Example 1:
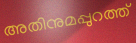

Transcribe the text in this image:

അതിനുമപ്പുറത്ത്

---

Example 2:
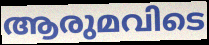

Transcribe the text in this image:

ആരുമവിടെ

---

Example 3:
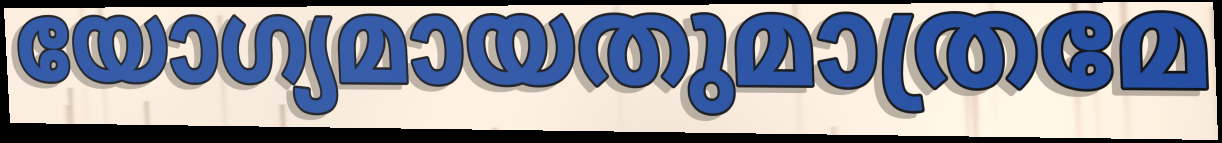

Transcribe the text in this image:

യോഗ്യമായതുമാത്രമേ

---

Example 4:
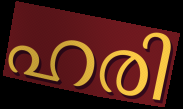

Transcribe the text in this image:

ഹരി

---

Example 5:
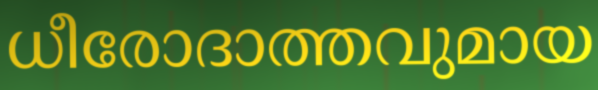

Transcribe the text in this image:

ധീരോദാത്തവുമായ